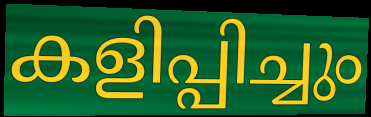
കളിപ്പിച്ചും